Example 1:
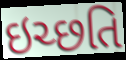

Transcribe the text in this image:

ઇચ્છતિ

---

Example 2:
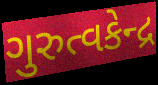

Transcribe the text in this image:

ગુરુત્વકેન્દ્ર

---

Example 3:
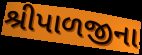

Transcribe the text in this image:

શ્રીપાળજીના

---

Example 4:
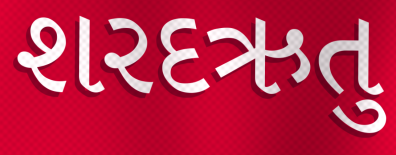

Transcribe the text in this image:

શરદઋતુ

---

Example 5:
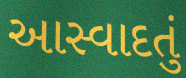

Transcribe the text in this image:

આસ્વાદતું